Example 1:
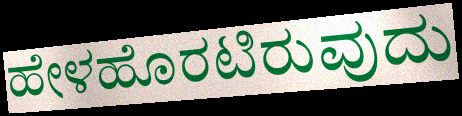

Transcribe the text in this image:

ಹೇಳಹೊರಟಿರುವುದು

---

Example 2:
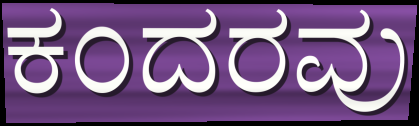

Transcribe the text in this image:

ಕಂದರವು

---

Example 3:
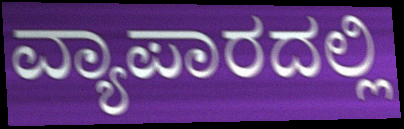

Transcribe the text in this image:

ವ್ಯಾಪಾರದಲ್ಲಿ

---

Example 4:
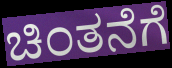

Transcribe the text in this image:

ಚಿಂತನೆಗೆ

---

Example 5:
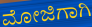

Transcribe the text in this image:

ಮೋಜಿಗಾಗಿ